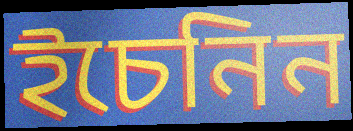
ইচেনিন